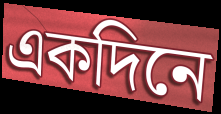
একদিনে